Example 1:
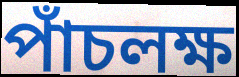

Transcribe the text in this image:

পাঁচলক্ষ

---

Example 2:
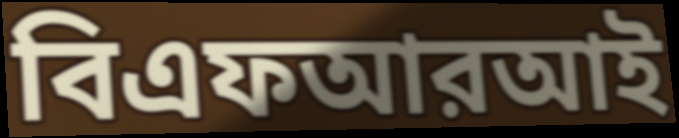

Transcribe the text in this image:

বিএফআরআই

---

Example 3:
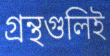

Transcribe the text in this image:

গ্রন্থগুলিই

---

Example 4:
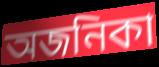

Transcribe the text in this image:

অজনিকা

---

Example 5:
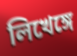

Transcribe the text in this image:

লিখেঙ্গে